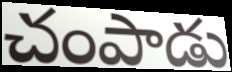
చంపాడు